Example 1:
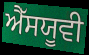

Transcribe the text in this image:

ਐੱਸਯੂਵੀ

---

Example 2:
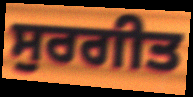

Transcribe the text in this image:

ਸੁਰਗੀਤ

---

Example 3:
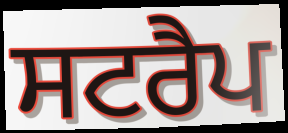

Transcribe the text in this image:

ਸਟਰੈਪ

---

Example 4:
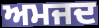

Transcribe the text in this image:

ਅਮਜਦ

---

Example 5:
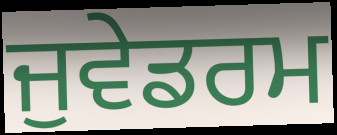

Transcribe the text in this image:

ਜੁਵੇਡਰਮ